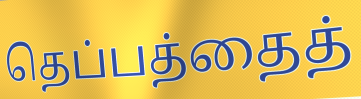
தெப்பத்தைத்